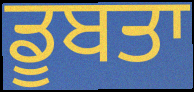
ਡੂਬਤਾ